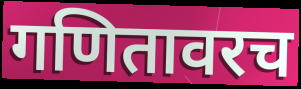
गणितावरच